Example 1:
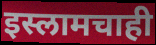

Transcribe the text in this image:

इस्लामचाही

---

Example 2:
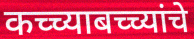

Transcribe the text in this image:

कच्च्याबच्च्यांचे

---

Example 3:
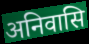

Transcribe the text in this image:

अनिवासि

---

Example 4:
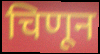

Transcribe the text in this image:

चिणून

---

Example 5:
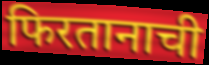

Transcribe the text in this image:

फिरतानाची